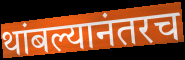
थांबल्यानंतरच